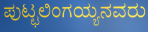
ಪುಟ್ಟಲಿಂಗಯ್ಯನವರು